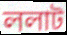
ললাট